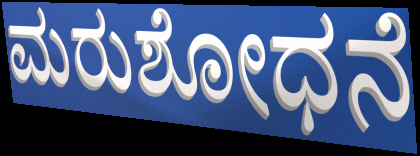
ಮರುಶೋಧನೆ